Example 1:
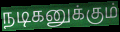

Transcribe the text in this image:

நடிகனுக்கும்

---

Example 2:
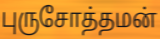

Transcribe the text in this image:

புருசோத்தமன்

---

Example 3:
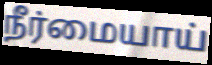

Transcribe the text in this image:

நீர்மையாய்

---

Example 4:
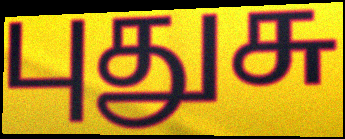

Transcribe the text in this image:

புதுசு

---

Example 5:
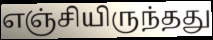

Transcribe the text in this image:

எஞ்சியிருந்தது